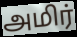
அமிர்